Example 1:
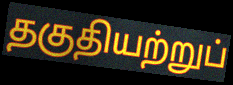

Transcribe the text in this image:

தகுதியற்றுப்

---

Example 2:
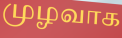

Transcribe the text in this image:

முழவாக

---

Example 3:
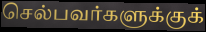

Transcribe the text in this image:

செல்பவர்களுக்குக்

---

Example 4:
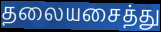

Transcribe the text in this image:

தலையசைத்து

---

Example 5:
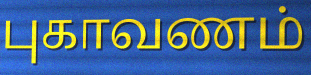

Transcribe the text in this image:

புகாவணம்